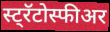
स्ट्रॅटोस्फीअर